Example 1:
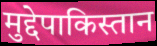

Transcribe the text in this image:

मुद्देपाकिस्तान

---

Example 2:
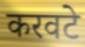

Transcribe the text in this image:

करवटे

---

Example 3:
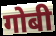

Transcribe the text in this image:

गोबी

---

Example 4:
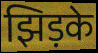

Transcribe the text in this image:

झिड़के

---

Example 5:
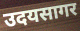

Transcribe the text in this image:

उदयसागर